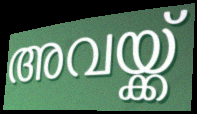
അവയ്ക്ക്